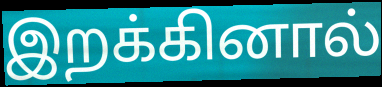
இறக்கினால்